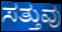
ಸತ್ತುವು